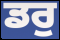
ਡਰੁ